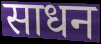
साधन